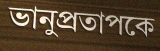
ভানুপ্রতাপকে